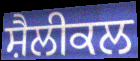
ਸ਼ੈਲੀਕਲ